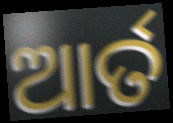
ଆର୍ତ